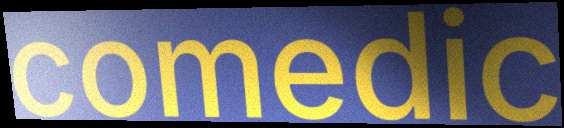
comedic